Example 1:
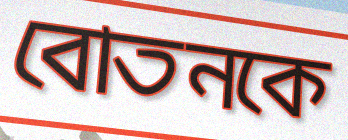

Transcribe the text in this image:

বোতনকে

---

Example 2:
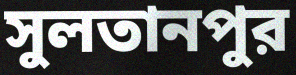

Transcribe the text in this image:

সুলতানপুর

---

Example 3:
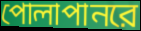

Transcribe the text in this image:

পোলাপানরে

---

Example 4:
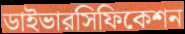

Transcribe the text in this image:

ডাইভারসিফিকেশন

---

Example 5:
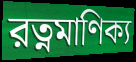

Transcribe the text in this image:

রত্নমাণিক্য